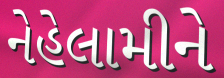
નેહેલામીને